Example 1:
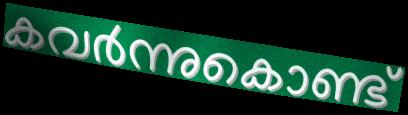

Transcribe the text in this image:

കവർന്നുകൊണ്ട്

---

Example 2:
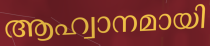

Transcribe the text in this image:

ആഹ്വാനമായി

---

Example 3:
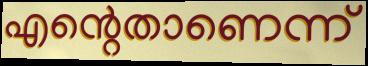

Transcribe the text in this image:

എന്റെതാണെന്ന്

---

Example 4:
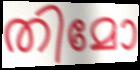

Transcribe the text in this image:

തിമോ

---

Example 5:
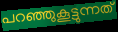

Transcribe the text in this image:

പറഞ്ഞുകൂട്ടുന്നത്